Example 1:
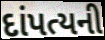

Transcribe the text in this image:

દાંપત્યની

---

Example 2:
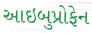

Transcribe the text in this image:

આઇબુપ્રોફેન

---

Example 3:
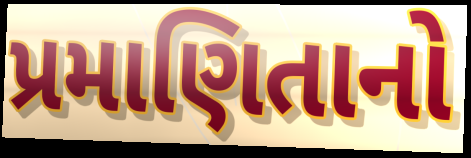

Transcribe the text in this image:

પ્રમાણિતાનો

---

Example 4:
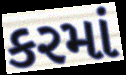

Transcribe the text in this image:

કરમાં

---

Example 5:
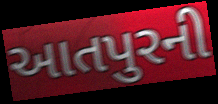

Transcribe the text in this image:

આતપુરની